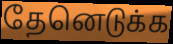
தேனெடுக்க